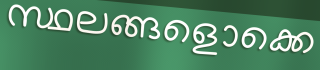
സ്ഥലങ്ങളൊക്കെ